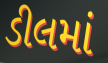
ડીલમાં